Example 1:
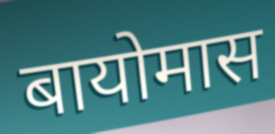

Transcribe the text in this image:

बायोमास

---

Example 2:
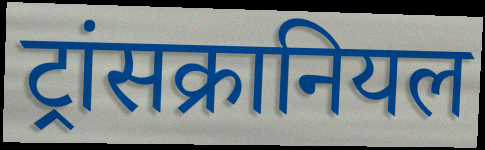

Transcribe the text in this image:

ट्रांसक्रानियल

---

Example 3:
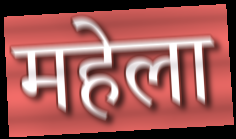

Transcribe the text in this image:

महेला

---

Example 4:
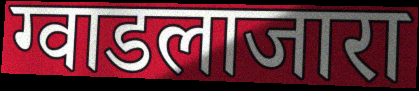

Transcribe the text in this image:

ग्वाडलाजारा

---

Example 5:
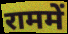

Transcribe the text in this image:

राममें